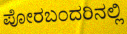
ಪೋರಬಂದರಿನಲ್ಲಿ